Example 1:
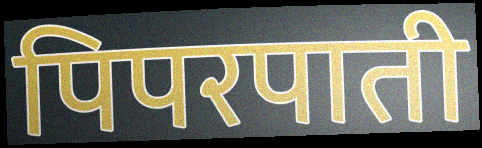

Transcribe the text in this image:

पिपरपाती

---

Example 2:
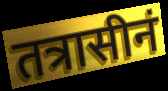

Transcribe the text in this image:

तत्रासीनं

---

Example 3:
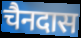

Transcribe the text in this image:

चैनदास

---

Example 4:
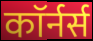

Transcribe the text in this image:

कॉर्नर्स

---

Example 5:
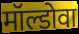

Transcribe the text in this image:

मॉल्डोवा